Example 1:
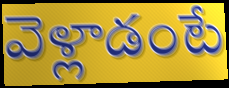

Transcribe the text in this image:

వెళ్లాడంటే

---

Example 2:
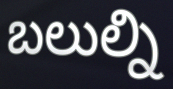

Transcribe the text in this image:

బలుల్ని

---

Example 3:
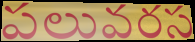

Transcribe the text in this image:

పలువరస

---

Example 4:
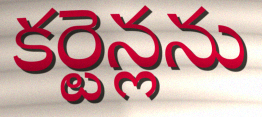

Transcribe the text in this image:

కర్టెన్లను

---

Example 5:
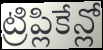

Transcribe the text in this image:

ట్రిప్లికేన్లో